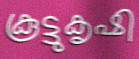
കൂട്ടുകൃഷി